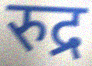
रुद्र